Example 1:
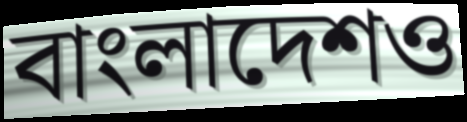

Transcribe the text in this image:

বাংলাদেশও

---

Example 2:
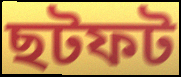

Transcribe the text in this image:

ছটফট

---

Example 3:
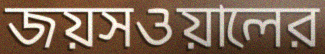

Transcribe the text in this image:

জয়সওয়ালের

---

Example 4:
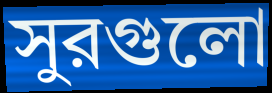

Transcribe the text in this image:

সুরগুলো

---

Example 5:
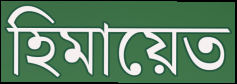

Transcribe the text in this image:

হিমায়েত